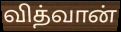
வித்வான்